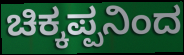
ಚಿಕ್ಕಪ್ಪನಿಂದ